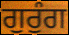
ਗੁਰੁੰਗ